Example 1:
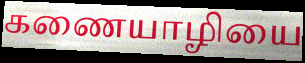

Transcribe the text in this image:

கணையாழியை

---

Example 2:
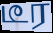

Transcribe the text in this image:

டீர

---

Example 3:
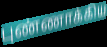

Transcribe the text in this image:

புண்ணாக்கிய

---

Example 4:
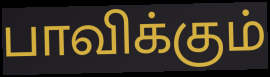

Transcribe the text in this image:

பாவிக்கும்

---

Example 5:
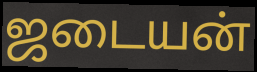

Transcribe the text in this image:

ஜடையன்